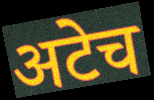
अटेच